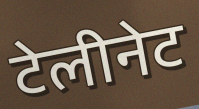
टेलीनेट